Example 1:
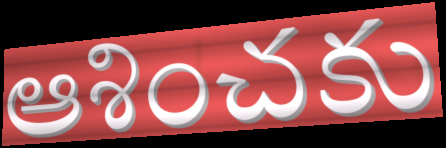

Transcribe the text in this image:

ఆశించకు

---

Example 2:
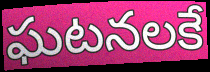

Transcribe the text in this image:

ఘటనలకే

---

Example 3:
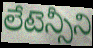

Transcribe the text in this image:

లేటెన్సీని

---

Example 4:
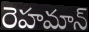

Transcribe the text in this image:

రెహమాన్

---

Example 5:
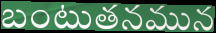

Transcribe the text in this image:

బంటుతనమున